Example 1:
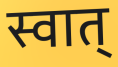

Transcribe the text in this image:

स्वात्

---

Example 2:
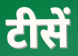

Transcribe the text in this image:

टीसें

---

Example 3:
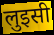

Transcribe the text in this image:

लुइसी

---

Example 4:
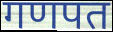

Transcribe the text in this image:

गणपत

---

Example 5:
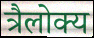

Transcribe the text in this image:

त्रैलोक्य